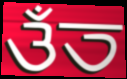
ওঁত